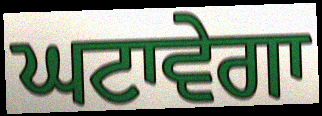
ਘਟਾਵੇਗਾ